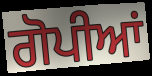
ਗੋਪੀਆਂ